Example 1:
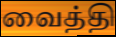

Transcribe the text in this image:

வைத்தி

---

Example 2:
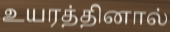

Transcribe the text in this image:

உயரத்தினால்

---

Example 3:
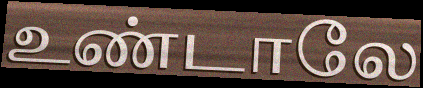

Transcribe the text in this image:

உண்டாலே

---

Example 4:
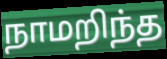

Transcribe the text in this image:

நாமறிந்த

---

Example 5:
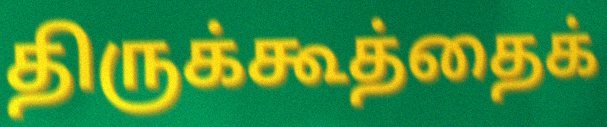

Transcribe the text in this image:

திருக்கூத்தைக்